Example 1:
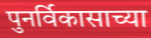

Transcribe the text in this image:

पुनर्विकासाच्या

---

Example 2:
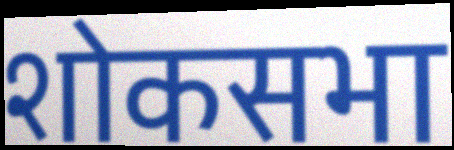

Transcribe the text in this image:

शोकसभा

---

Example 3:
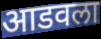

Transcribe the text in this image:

आडवला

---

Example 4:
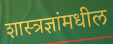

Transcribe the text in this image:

शास्त्रज्ञांमधील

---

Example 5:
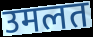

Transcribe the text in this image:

उमलत